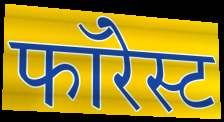
फॉरेस्ट